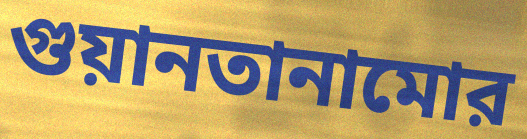
গুয়ানতানামোর